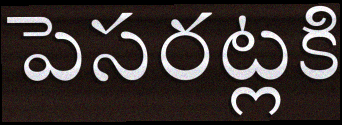
పెసరట్లకి